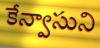
కేన్వాసుని